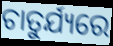
ଚାତୁର୍ଯ୍ୟରେ